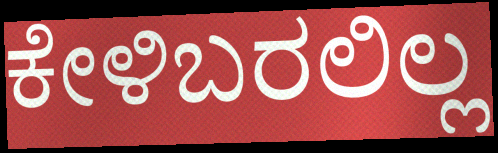
ಕೇಳಿಬರಲಿಲ್ಲ